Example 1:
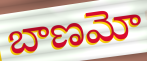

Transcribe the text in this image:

బాణమో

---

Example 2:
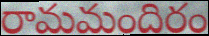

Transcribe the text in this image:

రామమందిరం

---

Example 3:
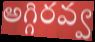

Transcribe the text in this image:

అగ్గిరవ్వ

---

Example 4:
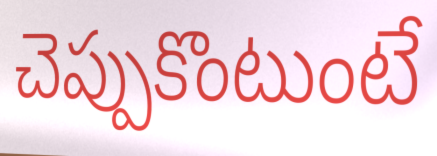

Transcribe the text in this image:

చెప్పుకొంటుంటే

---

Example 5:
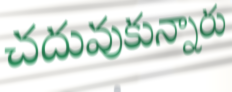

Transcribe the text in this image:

చదువుకున్నారు